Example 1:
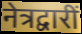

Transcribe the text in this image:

नेत्रद्वारीं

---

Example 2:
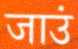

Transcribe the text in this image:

जाउं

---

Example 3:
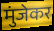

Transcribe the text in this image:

मुंजेकर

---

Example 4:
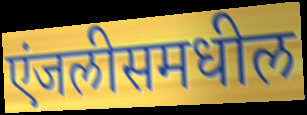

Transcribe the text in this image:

एंजलीसमधील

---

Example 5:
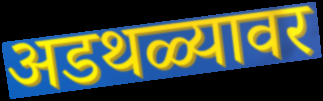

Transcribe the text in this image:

अडथळ्यावर